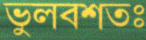
ভুলবশতঃ